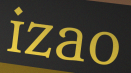
izao